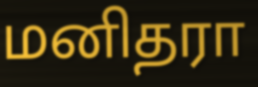
மனிதரா